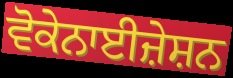
ਵੋਕੇਨਾਈਜ਼ੇਸ਼ਨ